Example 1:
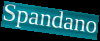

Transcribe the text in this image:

Spandano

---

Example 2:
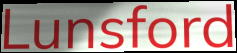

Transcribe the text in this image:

Lunsford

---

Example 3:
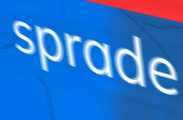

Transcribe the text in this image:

sprade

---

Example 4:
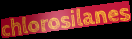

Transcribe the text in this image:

chlorosilanes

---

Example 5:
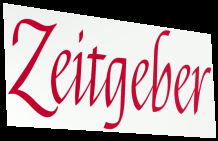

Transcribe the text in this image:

Zeitgeber